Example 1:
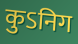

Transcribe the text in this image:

कुऽनिग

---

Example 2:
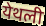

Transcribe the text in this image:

येथली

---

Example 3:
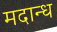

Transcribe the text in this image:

मदान्ध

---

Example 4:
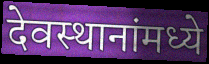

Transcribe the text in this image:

देवस्थानांमध्ये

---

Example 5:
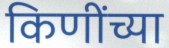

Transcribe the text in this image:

किणींच्या